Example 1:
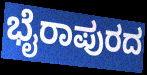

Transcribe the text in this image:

ಭೈರಾಪುರದ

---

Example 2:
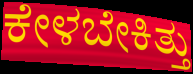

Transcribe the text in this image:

ಕೇಳಬೇಕಿತ್ತು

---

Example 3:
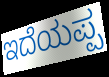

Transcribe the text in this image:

ಇದೆಯಪ್ಪ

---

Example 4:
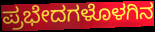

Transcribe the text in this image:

ಪ್ರಭೇದಗಳೊಳಗಿನ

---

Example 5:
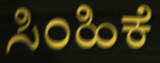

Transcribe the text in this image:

ಸಿಂಹಿಕೆ